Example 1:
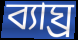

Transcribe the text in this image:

ব্যাঘ্ৰ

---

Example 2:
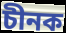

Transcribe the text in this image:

চীনক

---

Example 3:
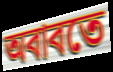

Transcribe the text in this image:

অবাবতে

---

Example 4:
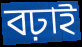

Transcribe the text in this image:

বঢ়াই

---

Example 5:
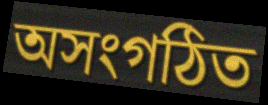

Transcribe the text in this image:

অসংগঠিত